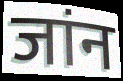
जांन